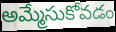
అమ్మేసుకోవడం